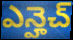
ఎన్హెచ్